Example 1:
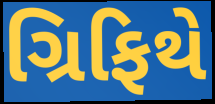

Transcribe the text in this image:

ગ્રિફિથે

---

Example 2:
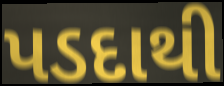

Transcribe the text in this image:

પડદાથી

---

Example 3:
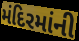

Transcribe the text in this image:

મંદિરમાંની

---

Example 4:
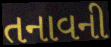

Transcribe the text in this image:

તનાવની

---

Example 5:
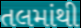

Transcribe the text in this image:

તલમાંથી